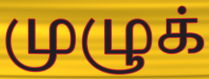
முழுக்